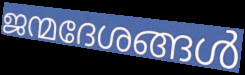
ജന്മദേശങ്ങൾ